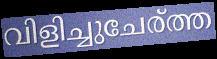
വിളിച്ചുചേര്ത്ത